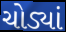
ચોડ્યાં